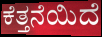
ಕೆತ್ತನೆಯಿದೆ